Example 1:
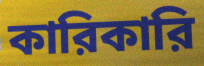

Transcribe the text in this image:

কারিকারি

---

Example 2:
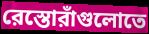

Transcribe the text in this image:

রেস্তোরাঁগুলোতে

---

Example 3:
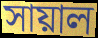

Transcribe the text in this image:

সায়াল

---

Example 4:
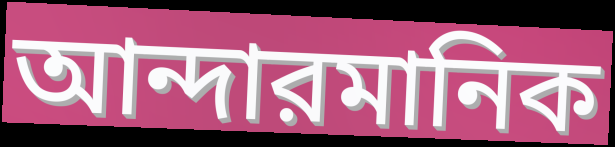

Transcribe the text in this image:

আন্দারমানিক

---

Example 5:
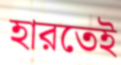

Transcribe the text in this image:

হারতেই